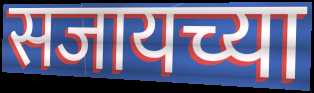
सजायच्या